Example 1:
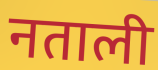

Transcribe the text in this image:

नताली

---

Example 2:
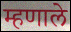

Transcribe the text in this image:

म्हणाले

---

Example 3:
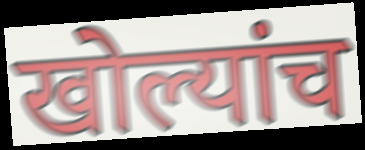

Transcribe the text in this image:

खोल्यांच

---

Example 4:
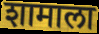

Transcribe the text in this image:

शामाला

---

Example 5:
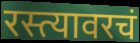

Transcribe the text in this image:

रस्त्यावरचं